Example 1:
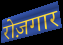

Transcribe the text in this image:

रोज़गार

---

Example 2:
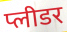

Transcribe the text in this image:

प्लीडर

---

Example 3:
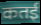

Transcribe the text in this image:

कतई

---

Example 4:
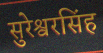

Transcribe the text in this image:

सुरेश्वरसिंह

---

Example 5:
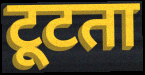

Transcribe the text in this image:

टूटता